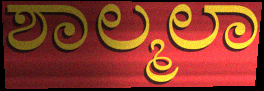
ಶಾಲ್ಮಲಾ